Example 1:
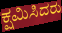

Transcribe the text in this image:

ಕ್ಷಮಿಸಿದರು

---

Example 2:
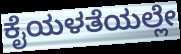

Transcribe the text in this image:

ಕೈಯಳತೆಯಲ್ಲೇ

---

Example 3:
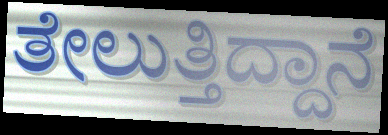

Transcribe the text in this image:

ತೇಲುತ್ತಿದ್ದಾನೆ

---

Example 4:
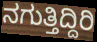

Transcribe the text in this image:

ನಗುತ್ತಿದ್ದಿರಿ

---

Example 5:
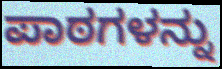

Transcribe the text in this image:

ಪಾಠಗಳನ್ನು